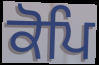
ਕੋਪਿ